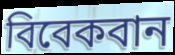
বিবেকবান